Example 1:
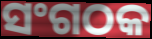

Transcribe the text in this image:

ସଂଗଠକ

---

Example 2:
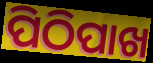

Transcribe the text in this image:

ପିଠିପାଖ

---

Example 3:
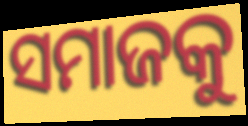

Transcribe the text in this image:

ସମାଜକୁ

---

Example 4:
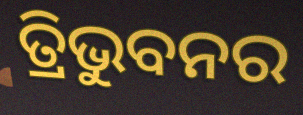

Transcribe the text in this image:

ତ୍ରିଭୁବନର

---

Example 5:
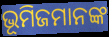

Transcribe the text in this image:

ଭୂମିଜମାନଙ୍କ